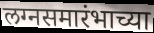
लग्नसमारंभाच्या